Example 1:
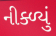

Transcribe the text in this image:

નીક્ળ્યું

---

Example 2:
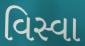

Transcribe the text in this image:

વિસ્વા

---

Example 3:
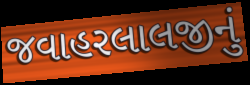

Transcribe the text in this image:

જવાહરલાલજીનું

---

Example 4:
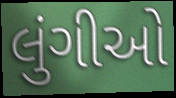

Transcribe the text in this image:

લુંગીઓ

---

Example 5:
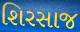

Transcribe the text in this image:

શિરસાજ